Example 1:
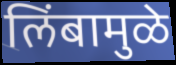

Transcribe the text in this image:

लिंबामुळे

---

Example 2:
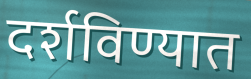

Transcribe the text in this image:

दर्शविण्यात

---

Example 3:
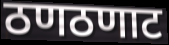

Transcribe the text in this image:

ठणठणाट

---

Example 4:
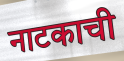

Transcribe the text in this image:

नाटकाची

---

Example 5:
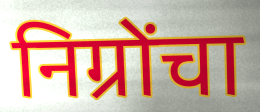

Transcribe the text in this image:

निग्रोंचा